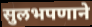
सुलभपणाने